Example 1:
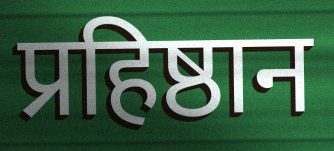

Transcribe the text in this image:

प्रहिष्ठान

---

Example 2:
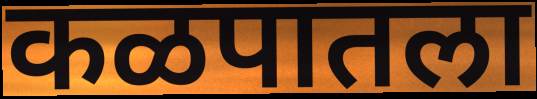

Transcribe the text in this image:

कळपातला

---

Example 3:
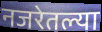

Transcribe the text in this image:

नजरेतल्या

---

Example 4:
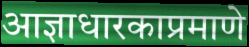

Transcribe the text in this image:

आज्ञाधारकाप्रमाणे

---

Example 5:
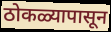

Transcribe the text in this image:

ठोकळ्यापासून